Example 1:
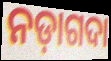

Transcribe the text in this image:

ନଡ଼ାଗଦା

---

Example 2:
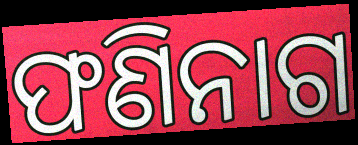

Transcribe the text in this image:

ଫଣିନାଗ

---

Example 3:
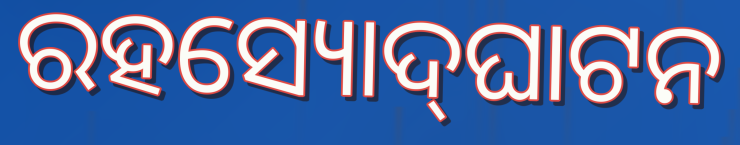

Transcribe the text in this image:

ରହସ୍ୟୋଦ୍‍ଘାଟନ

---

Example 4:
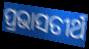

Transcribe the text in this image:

ପ୍ରଭାସତୀର୍ଥ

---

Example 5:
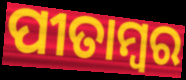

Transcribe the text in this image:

ପୀତାମ୍ବର